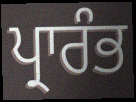
ਪ੍ਰਾਰੰਭ